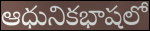
ఆధునికభాషలో